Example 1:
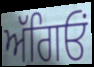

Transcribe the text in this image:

ਅੱਗਿਓਂ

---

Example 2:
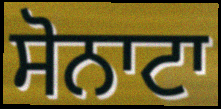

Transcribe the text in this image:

ਸੋਨਾਟਾ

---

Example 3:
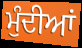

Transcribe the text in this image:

ਮੁੰਦੀਆਂ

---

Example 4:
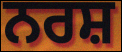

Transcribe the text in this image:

ਨਰਸ਼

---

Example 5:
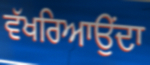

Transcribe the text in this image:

ਵੱਖਰਿਆਉਂਦਾ